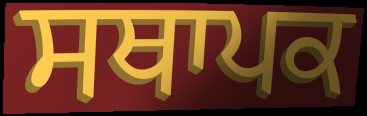
ਸਥਾਪਕ